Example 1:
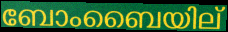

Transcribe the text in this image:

ബോംബൈയില്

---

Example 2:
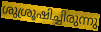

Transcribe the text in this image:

ശുശ്രൂഷിച്ചിരുന്നു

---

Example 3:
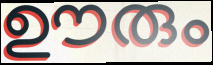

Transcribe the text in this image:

ഊരും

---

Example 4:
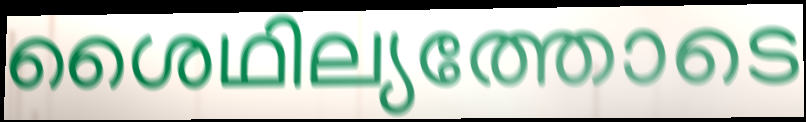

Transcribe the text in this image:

ശൈഥില്യത്തോടെ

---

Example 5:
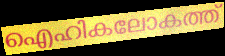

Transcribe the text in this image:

ഐഹികലോകത്ത്